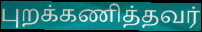
புறக்கணித்தவர்